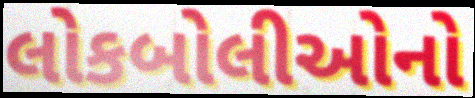
લોકબોલીઓનો